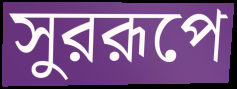
সুররূপে